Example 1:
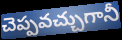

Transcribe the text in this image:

చెప్పవచ్చుగానీ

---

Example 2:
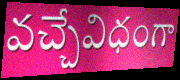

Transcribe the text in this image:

వచ్చేవిధంగా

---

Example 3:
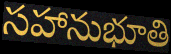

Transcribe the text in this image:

సహానుభూతి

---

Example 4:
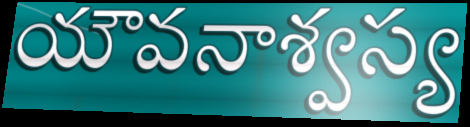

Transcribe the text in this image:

యౌవనాశ్వస్య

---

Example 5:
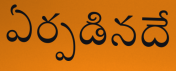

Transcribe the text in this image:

ఏర్పడినదే